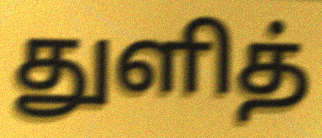
துளித்